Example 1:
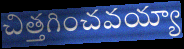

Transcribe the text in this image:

చిత్తగించవయ్యా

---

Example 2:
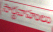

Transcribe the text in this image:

సార్థవాహులు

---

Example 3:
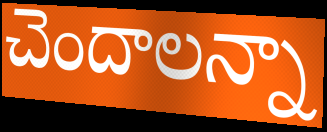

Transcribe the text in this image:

చెందాలన్నా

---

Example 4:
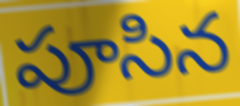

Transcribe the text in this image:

పూసిన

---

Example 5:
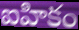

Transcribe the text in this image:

ఐహికం